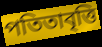
পতিতাবৃত্তি